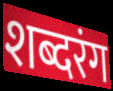
शब्दरंग